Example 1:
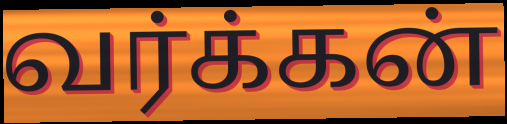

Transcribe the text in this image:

வர்க்கன்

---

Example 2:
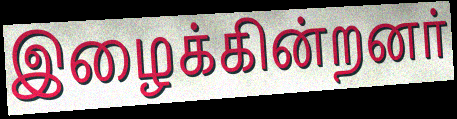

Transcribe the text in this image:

இழைக்கின்றனர்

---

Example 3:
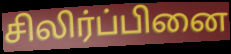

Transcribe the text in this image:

சிலிர்ப்பினை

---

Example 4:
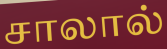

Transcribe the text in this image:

சாலால்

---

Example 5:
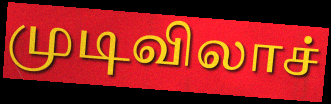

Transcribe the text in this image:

முடிவிலாச்